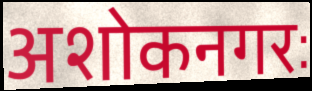
अशोकनगरः